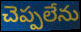
చెప్పలేను